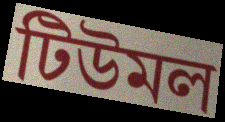
টিউমল